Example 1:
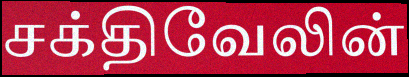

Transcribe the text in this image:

சக்திவேலின்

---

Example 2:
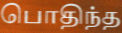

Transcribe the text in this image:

பொதிந்த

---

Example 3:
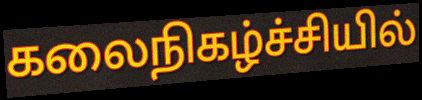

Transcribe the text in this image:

கலைநிகழ்ச்சியில்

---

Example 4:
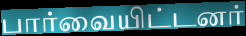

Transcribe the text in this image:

பார்வையிட்டனர்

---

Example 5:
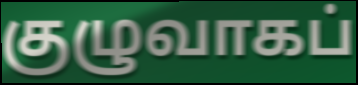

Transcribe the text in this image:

குழுவாகப்